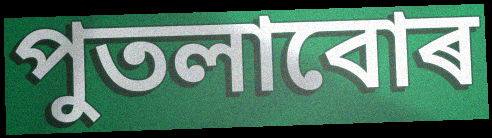
পুতলাবোৰ